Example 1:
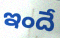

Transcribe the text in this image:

ఇందే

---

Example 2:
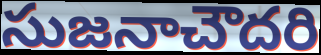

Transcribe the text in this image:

సుజనాచౌదరి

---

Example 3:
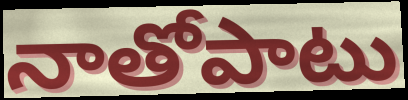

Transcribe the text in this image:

నాతోపాటు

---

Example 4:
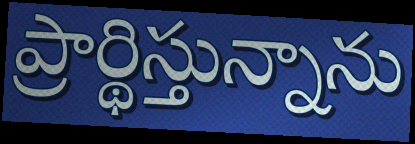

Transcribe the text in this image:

ప్రార్థిస్తున్నాను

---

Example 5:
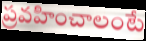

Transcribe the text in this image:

ప్రవహించాలంటే